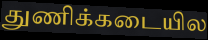
துணிக்கடையில